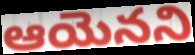
ఆయెనని